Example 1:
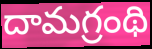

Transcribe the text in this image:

దామగ్రంథి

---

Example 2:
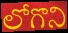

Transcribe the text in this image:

లోగొని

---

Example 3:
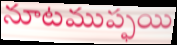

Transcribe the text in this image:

నూటముప్ఫయి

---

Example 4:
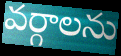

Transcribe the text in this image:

వర్గాలను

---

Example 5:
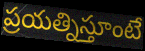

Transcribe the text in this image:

ప్రయత్నిస్తూంటే